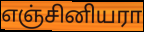
எஞ்சினியரா